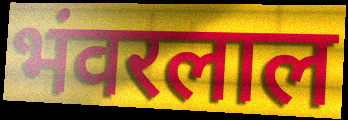
भंवरलाल